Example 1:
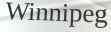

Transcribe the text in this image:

Winnipeg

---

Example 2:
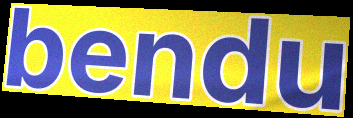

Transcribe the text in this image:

bendu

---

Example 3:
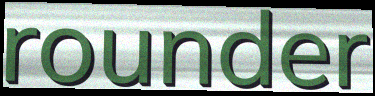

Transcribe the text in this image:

rounder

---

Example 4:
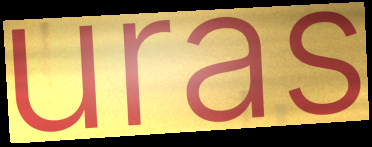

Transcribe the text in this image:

uras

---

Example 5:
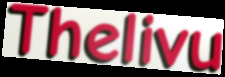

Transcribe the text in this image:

Thelivu